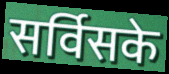
सर्विसके